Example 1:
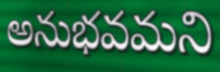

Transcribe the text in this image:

అనుభవమని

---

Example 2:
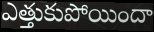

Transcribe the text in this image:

ఎత్తుకుపోయిందా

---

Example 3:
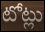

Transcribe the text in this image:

టోట్లు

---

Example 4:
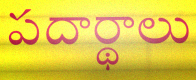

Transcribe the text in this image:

పదార్థాలు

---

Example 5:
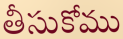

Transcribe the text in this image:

తీసుకోము